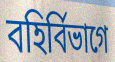
বহির্বিভাগে